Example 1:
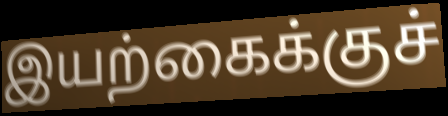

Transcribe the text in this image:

இயற்கைக்குச்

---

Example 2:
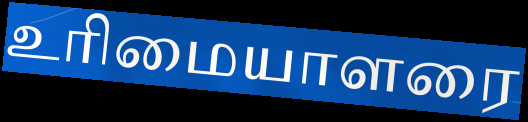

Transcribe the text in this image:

உரிமையாளரை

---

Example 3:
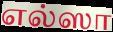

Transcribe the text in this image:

எல்ஸா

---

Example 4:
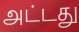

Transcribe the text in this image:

அட்டது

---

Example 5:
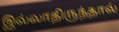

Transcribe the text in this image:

இல்லாதிருந்தால்